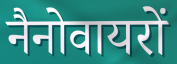
नैनोवायरों